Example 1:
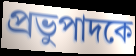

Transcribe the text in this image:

প্রভুপাদকে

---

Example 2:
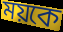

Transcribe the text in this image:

ময়কে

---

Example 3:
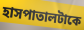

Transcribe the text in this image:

হাসপাতালটাকে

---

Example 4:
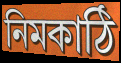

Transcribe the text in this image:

নিমকাঠি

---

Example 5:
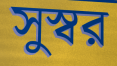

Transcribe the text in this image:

সুস্বর